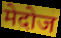
मेदोज